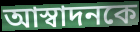
আস্বাদনকে